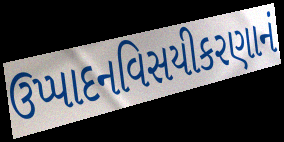
ઉપ્પાદનવિસયીકરણાનં